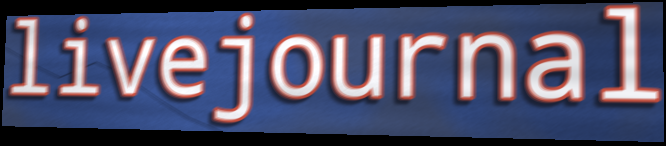
livejournal